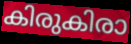
കിരുകിരാ